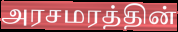
அரசமரத்தின்